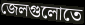
জেলগুলোতে